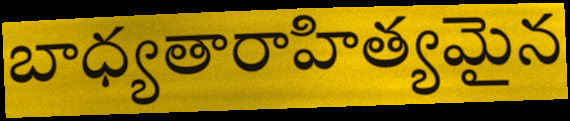
బాధ్యతారాహిత్యమైన